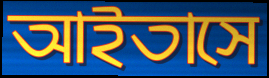
আইতাসে